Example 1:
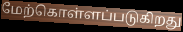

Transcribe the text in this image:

மேற்கொள்ளப்படுகிறது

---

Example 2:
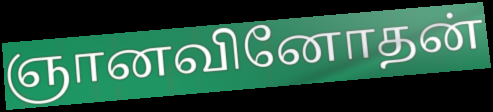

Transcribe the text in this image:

ஞானவினோதன்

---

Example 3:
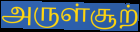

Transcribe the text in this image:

அருள்சூற்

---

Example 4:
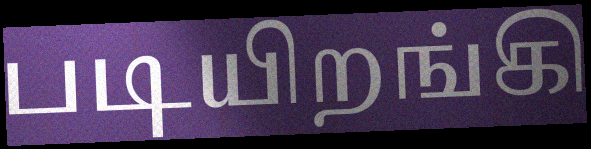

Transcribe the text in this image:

படியிறங்கி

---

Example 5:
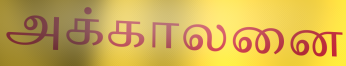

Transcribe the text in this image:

அக்காலனை